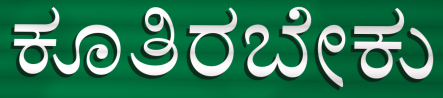
ಕೂತಿರಬೇಕು